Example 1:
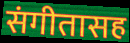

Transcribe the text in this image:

संगीतासह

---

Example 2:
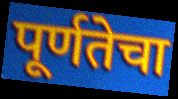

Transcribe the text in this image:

पूर्णतेचा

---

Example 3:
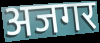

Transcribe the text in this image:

अजगर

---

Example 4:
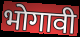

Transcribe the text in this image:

भोगावी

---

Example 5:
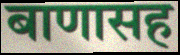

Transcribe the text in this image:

बाणासह